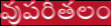
వుపరితలం